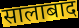
सालाबाद